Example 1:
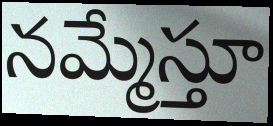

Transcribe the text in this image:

నమ్మేస్తూ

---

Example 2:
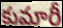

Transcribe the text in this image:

కుమారీ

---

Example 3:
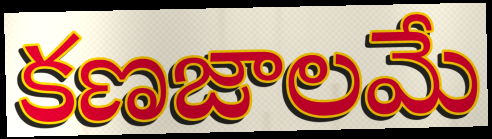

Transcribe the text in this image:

కణజాలమే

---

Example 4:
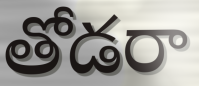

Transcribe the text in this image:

తోడరా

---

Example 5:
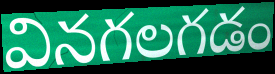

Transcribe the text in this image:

వినగలగడం